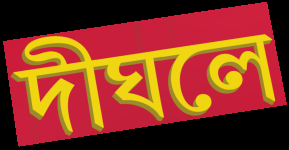
দীঘলে